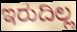
ಇರುದಿಲ್ಲ